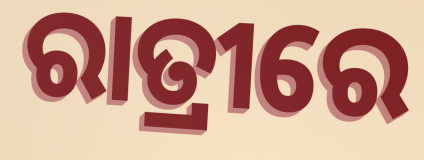
ରାତ୍ରୀରେ